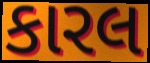
કારલ